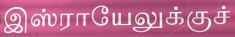
இஸ்ராயேலுக்குச்